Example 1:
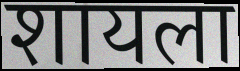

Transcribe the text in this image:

शायला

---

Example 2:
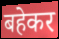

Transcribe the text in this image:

बहेकर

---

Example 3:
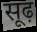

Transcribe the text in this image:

सूढ़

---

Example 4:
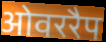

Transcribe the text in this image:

ओवररैप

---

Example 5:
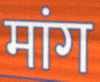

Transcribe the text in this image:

मांग